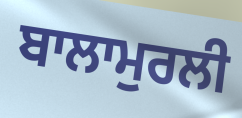
ਬਾਲਾਮੁਰਲੀ